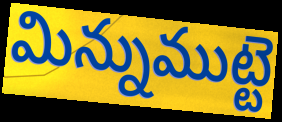
మిన్నుముట్టె